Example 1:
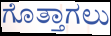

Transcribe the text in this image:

ಗೊತ್ತಾಗಲು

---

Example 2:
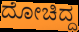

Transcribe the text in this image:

ದೋಚಿದ್ದ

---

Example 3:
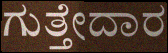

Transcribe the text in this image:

ಗುತ್ತೇದಾರ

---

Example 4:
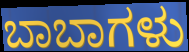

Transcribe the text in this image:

ಬಾಬಾಗಳು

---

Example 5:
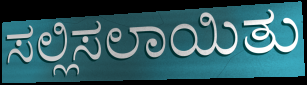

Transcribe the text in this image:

ಸಲ್ಲಿಸಲಾಯಿತು